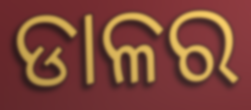
ଡାଳର